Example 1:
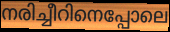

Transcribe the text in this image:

നരിച്ചീറിനെപ്പോലെ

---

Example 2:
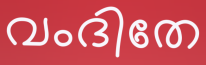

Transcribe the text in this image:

വംദിതേ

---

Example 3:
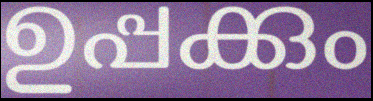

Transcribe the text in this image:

ഉപ്പക്കും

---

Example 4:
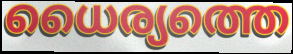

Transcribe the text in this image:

ധൈര്യത്തെ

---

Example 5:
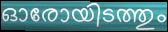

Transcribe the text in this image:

ഓരോയിടത്തും